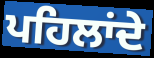
ਪਹਿਲਾਂਦੇ